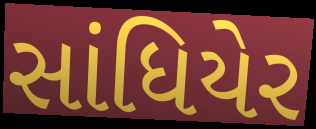
સાંધિયેર